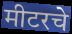
मीटरचे